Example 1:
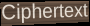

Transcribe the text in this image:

Ciphertext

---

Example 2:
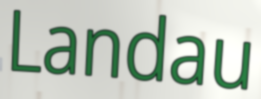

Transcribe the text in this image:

Landau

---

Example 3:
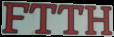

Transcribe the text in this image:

FTTH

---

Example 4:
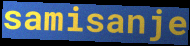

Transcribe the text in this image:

samisanje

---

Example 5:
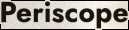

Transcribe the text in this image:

Periscope